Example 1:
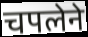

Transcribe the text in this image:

चपलेने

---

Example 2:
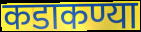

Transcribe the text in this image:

कडाकण्या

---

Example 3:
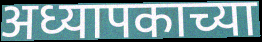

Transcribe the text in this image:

अध्यापकाच्या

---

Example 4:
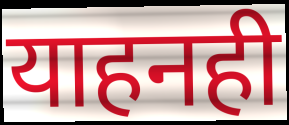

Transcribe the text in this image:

याहनही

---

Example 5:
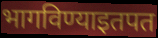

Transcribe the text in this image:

भागविण्याइतपत